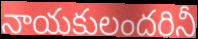
నాయకులందరినీ